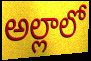
అల్లాలో